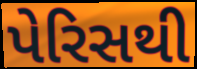
પેરિસથી